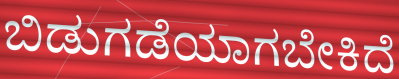
ಬಿಡುಗಡೆಯಾಗಬೇಕಿದೆ